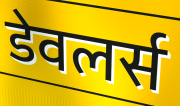
डेवलर्स